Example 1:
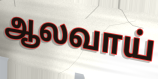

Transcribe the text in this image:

ஆலவாய்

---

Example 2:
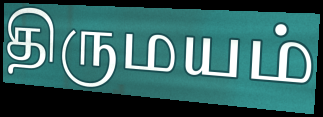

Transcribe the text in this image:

திருமயம்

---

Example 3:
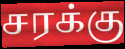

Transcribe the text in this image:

சரக்கு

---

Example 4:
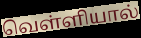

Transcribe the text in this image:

வெள்ளியால்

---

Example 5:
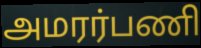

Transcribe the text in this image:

அமரர்பணி